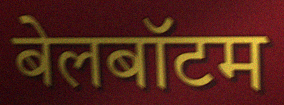
बेलबॉटम